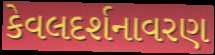
કેવલદર્શનાવરણ